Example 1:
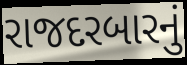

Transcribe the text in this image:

રાજદરબારનું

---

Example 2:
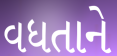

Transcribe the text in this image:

વધતાને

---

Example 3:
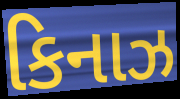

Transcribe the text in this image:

કિનાઝ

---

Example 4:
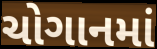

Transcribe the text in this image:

ચોગાનમાં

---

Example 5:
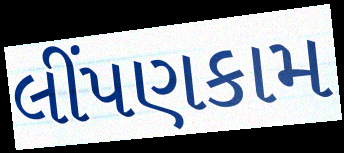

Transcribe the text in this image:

લીંપણકામ